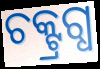
ଚକ୍ଟ୍ରଗ୍ଧ